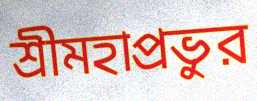
শ্রীমহাপ্রভুর